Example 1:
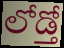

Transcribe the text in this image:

లోడ్తో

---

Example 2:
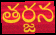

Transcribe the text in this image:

తర్జన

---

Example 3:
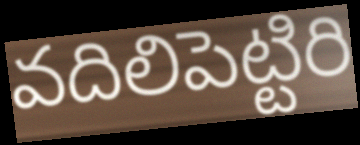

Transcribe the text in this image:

వదిలిపెట్టిరి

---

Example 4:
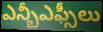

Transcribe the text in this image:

ఎన్బీఎఫ్సీలు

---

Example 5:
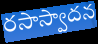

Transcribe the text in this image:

రసాస్వాదన